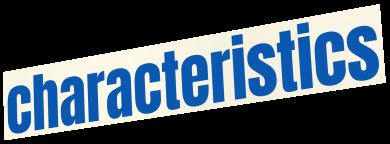
characteristics